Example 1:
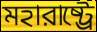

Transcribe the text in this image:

মহারাষ্ট্রে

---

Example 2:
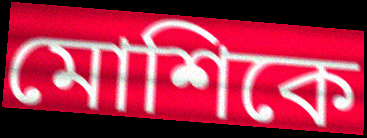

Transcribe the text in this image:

মোশিকে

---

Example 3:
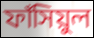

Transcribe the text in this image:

ফাঁসিয়ুল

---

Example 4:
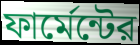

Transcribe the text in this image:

ফার্মেন্টের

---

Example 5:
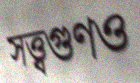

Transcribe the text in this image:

সত্ত্বগুণও